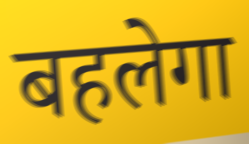
बहलेगा